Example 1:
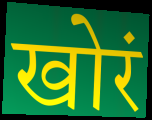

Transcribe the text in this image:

खोरं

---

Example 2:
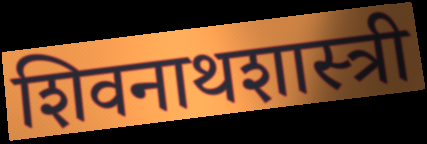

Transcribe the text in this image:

शिवनाथशास्त्री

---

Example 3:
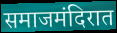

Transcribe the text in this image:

समाजमंदिरात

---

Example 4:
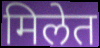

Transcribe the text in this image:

मिलेत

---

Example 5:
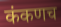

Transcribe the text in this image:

कंकणच